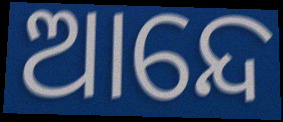
ଆନ୍ଦେ